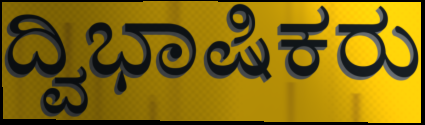
ದ್ವಿಭಾಷಿಕರು